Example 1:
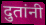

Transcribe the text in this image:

दुतांनी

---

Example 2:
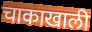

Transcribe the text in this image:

चाकाखाली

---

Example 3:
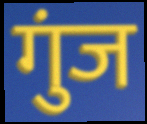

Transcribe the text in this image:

गुंज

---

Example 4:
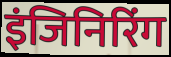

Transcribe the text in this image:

इंजिनिरिंग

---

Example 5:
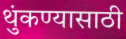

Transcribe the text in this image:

थुंकण्यासाठी